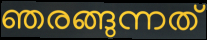
ഞരങ്ങുന്നത്